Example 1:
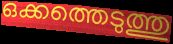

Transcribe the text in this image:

ഒക്കത്തെടുത്തു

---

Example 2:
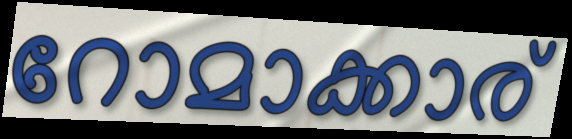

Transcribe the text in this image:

റോമാക്കാര്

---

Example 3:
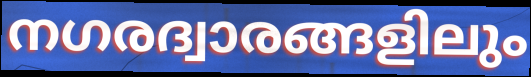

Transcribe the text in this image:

നഗരദ്വാരങ്ങളിലും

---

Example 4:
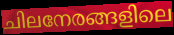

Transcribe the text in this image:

ചിലനേരങ്ങളിലെ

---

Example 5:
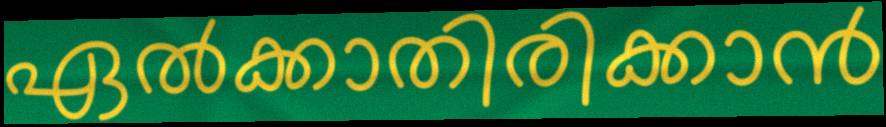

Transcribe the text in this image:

ഏൽക്കാതിരിക്കാൻ